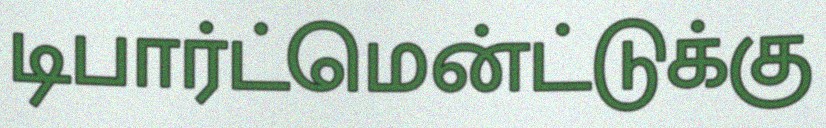
டிபார்ட்மென்ட்டுக்கு